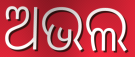
ଅଭଲ